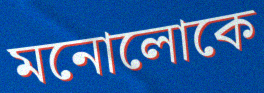
মনোলোকে